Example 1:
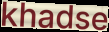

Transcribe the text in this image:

khadse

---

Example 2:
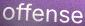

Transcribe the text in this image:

offense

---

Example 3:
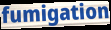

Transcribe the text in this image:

fumigation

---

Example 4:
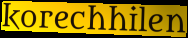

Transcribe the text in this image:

korechhilen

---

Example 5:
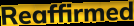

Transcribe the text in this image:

Reaffirmed